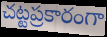
చట్టప్రకారంగా